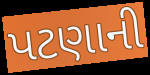
પટણાની